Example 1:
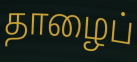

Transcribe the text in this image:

தாழைப்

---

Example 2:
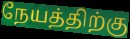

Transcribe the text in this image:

நேயத்திற்கு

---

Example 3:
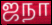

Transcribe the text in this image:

ஜநா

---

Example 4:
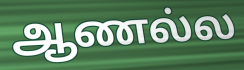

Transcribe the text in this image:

ஆணல்ல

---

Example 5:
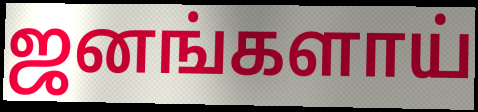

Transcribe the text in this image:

ஜனங்களாய்